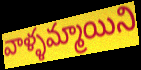
వాళ్ళమ్మాయిని